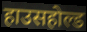
हाउसहोल्ड